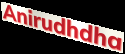
Anirudhdha